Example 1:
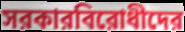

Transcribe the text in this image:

সরকারবিরোধীদের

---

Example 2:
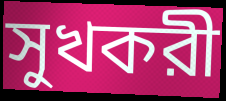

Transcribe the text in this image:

সুখকরী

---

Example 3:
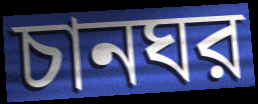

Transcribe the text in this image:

চানঘর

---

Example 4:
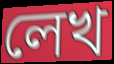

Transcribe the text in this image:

লেখ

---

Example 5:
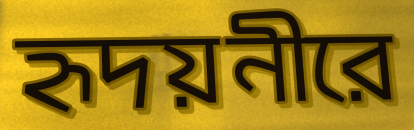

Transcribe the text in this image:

হৃদয়নীরে